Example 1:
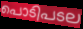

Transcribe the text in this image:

പൊടിപടല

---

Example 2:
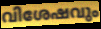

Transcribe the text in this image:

വിശേഷവും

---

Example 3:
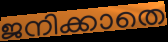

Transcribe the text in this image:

ജനിക്കാതെ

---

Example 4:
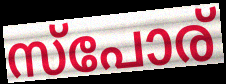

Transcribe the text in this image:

സ്പോര്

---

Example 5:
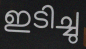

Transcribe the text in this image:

ഇടിച്ചു